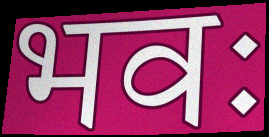
भवः